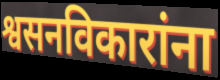
श्वसनविकारांना